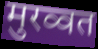
मुरव्वत